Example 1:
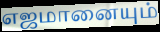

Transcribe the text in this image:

எஜமானையும்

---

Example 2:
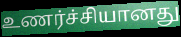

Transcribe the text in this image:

உணர்ச்சியானது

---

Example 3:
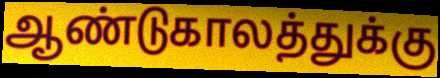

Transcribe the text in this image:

ஆண்டுகாலத்துக்கு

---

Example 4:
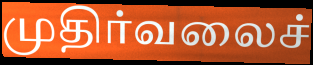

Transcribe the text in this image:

முதிர்வலைச்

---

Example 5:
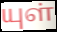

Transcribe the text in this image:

யுள்